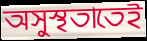
অসুস্থতাতেই